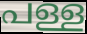
പള്ള